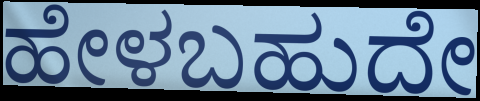
ಹೇಳಬಹುದೇ